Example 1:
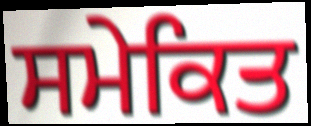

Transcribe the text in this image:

ਸਮੇਕਿਤ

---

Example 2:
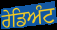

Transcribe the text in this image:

ਰੇਡਿਅੰਟ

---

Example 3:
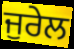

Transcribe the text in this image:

ਜੁਰੇਲ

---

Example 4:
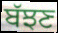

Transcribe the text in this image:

ਬੱਝਣ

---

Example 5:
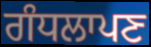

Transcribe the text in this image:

ਗੰਧਲਾਪਣ